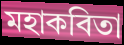
মহাকবিতা